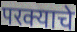
परक्याचे